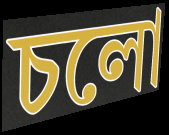
চলো